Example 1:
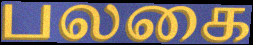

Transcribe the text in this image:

பலகை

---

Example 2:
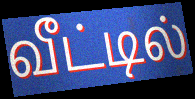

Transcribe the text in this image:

வீட்டில்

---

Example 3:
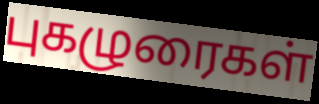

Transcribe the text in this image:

புகழுரைகள்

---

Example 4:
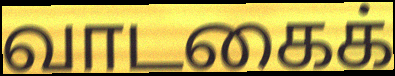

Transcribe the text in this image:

வாடகைக்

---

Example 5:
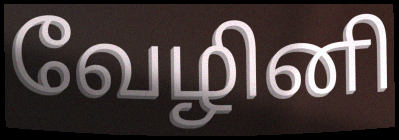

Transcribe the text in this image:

வேழினி